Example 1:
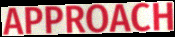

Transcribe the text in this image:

APPROACH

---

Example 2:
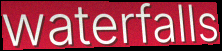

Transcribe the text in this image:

waterfalls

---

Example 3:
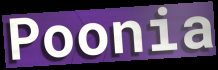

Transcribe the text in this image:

Poonia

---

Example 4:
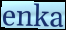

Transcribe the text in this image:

enka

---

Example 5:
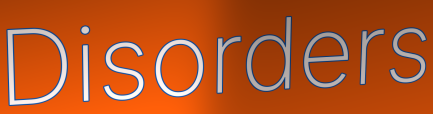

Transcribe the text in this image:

Disorders